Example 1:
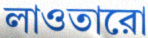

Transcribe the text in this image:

লাওতারো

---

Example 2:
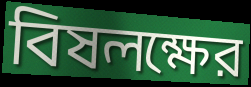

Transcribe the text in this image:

বিষলক্ষের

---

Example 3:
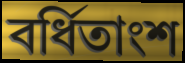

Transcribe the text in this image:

বর্ধিতাংশ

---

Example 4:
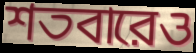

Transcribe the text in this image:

শতবারেও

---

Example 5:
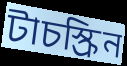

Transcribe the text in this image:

টাচস্ক্রিন